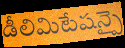
డీలిమిటేషన్పై